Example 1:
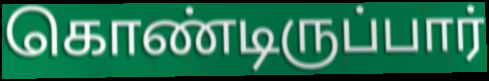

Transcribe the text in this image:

கொண்டிருப்பார்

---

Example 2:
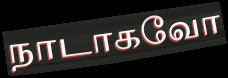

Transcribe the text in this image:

நாடாகவோ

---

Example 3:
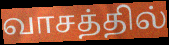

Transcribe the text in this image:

வாசத்தில்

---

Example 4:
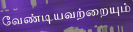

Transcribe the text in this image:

வேண்டியவற்றையும்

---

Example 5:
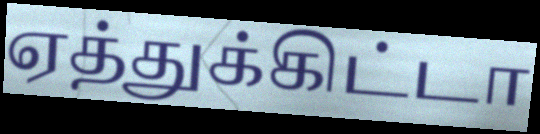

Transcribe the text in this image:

ஏத்துக்கிட்டா